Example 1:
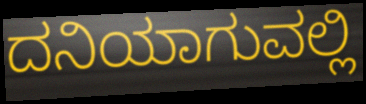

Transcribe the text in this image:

ದನಿಯಾಗುವಲ್ಲಿ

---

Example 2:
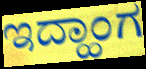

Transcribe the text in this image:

ಇದ್ಹಾಂಗ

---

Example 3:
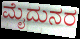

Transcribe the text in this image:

ಮೈದುನರ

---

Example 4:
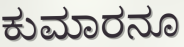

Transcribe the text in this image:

ಕುಮಾರನೂ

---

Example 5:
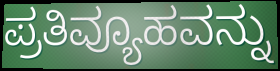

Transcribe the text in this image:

ಪ್ರತಿವ್ಯೂಹವನ್ನು